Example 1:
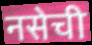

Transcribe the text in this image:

नसेची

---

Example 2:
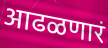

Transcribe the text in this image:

आढळणारं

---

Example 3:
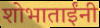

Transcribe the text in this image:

शोभाताईंनी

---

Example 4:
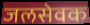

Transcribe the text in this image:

जलसेवक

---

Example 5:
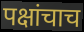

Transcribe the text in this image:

पक्षांचाच